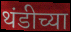
थंडीच्या